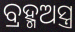
ବ୍ରହ୍ମଅସ୍ତ୍ର